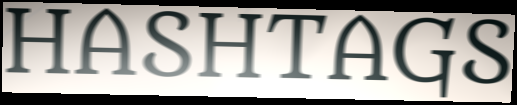
HASHTAGS